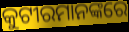
କୁଟୀରମାନଙ୍କରେ